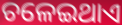
ଚଳେଇଥାଏ